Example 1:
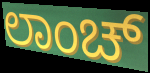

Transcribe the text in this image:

ಲಾಂಚ್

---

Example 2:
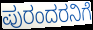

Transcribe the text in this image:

ಪುರಂದರನಿಗೆ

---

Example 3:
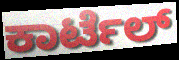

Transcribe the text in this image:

ಕಾರ್ಟೆಲ್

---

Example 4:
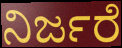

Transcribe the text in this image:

ನಿರ್ಜರೆ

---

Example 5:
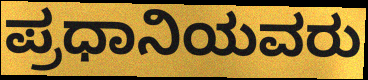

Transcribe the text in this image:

ಪ್ರಧಾನಿಯವರು